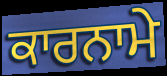
ਕਾਰਨਾਮੇ